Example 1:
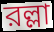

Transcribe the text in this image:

রল্লা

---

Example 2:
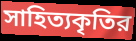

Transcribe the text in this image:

সাহিত্যকৃতির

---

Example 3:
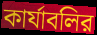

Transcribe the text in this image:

কার্যাবলির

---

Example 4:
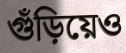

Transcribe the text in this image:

গুঁড়িয়েও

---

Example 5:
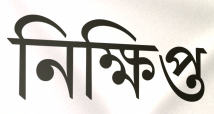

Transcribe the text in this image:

নিক্ষিপ্ত